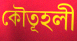
কৌতূহলী